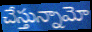
చేస్తున్నామో